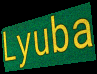
Lyuba